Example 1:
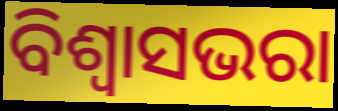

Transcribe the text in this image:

ବିଶ୍ୱାସଭରା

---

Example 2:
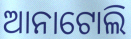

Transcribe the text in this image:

ଆନାଟୋଲି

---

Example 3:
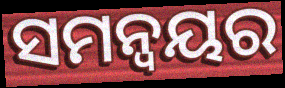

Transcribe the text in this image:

ସମନ୍ଵୟର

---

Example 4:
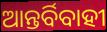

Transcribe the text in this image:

ଆନ୍ତର୍ବିବାହୀ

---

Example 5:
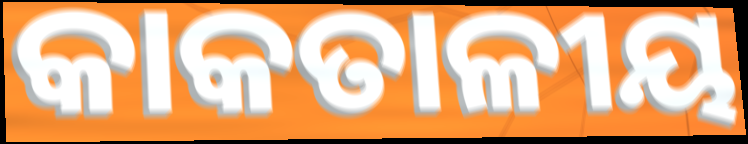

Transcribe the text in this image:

କାକତାଳୀୟ